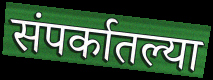
संपर्कातल्या